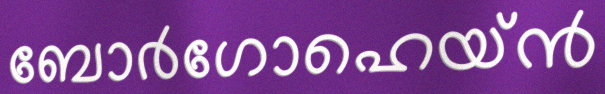
ബോർഗോഹെയ്ൻ